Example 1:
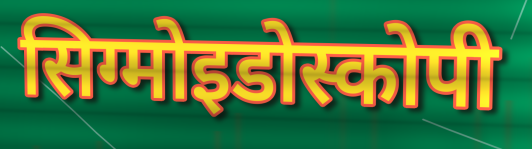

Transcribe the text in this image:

सिग्मोइडोस्कोपी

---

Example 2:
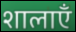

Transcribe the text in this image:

शालाएँ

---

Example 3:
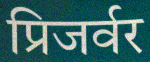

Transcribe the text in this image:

प्रिजर्वर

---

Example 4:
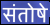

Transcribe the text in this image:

संतोषे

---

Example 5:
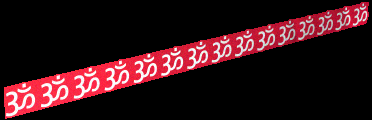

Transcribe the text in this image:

ॐॐॐॐॐॐॐॐॐॐॐॐॐॐॐ